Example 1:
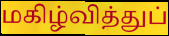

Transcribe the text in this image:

மகிழ்வித்துப்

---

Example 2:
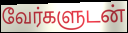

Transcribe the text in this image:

வேர்களுடன்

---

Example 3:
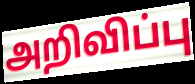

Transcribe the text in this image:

அறிவிப்பு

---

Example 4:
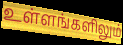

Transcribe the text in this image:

உள்ளங்களிலும்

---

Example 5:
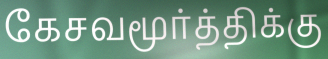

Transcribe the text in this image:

கேசவமூர்த்திக்கு